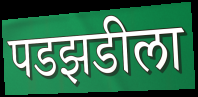
पडझडीला